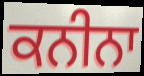
ਕਨੀਨਾ